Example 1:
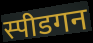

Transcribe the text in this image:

स्पीडगन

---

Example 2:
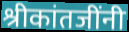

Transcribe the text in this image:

श्रीकांतजींनी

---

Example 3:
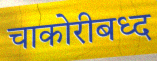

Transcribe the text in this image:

चाकोरीबध्द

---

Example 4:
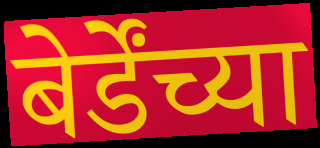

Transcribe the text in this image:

बेर्डेंच्या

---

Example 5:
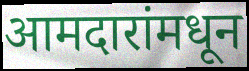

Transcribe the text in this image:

आमदारांमधून